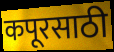
कपूरसाठी